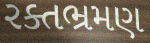
રક્તભ્રમણ